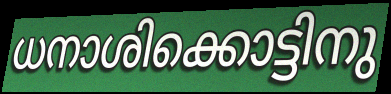
ധനാശിക്കൊട്ടിനു